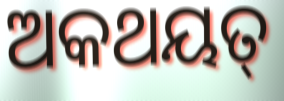
ଅକଥୟତ୍